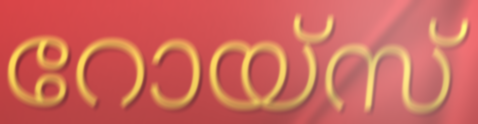
റോയ്സ്